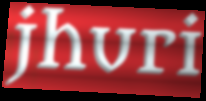
jhuri